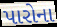
પારોના